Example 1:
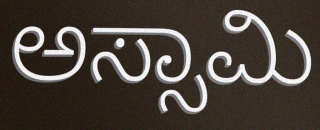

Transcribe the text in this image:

ಅಸ್ಸಾಮಿ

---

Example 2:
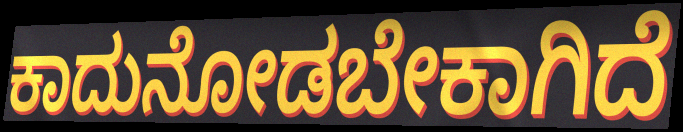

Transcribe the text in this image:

ಕಾದುನೋಡಬೇಕಾಗಿದೆ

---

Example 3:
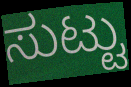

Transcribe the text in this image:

ಸುಟ್ಟು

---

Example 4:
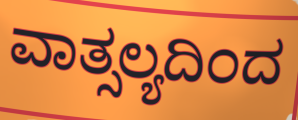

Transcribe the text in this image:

ವಾತ್ಸಲ್ಯದಿಂದ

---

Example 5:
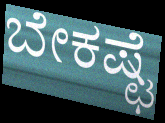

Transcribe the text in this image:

ಬೇಕಷ್ಟೆ